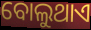
ବୋଲୁଥାଏ